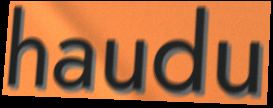
haudu